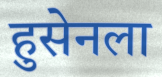
हुसेनला